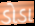
ડોડા